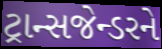
ટ્રાન્સજેન્ડરને